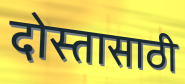
दोस्तासाठी